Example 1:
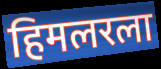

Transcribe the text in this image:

हिमलरला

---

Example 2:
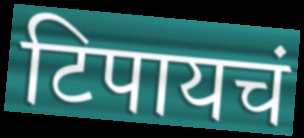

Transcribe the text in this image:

टिपायचं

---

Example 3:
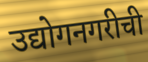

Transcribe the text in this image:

उद्योगनगरीची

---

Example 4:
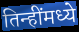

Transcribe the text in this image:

तिन्हींमध्ये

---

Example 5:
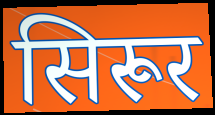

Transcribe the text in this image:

सिरूर